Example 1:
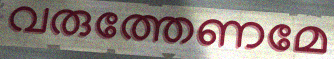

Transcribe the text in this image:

വരുത്തേണമേ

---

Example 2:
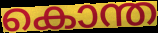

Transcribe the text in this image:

കൊന്ത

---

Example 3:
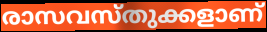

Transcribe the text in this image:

രാസവസ്തുക്കളാണ്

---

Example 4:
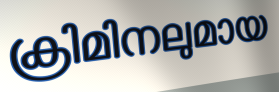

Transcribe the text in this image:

ക്രിമിനലുമായ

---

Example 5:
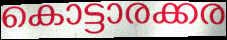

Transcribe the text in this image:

കൊട്ടാരക്കര